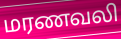
மரணவலி